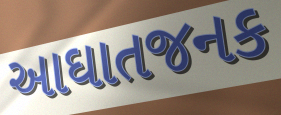
આઘાતજનક